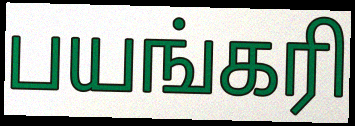
பயங்கரி